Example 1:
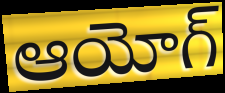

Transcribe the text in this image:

ఆయోగ్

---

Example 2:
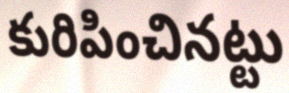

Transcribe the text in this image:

కురిపించినట్టు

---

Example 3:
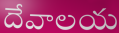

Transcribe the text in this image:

దేవాలయ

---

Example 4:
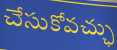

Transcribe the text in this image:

చేసుకోవచ్ఛు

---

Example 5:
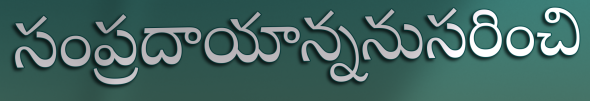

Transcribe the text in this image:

సంప్రదాయాన్ననుసరించి